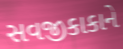
સવજીકાકાને